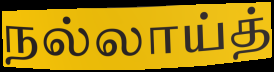
நல்லாய்த்